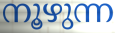
നൂഴുന്ന